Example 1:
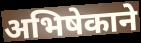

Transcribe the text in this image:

अभिषेकाने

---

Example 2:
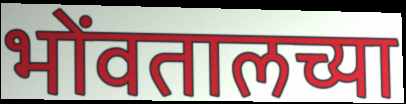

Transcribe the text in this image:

भोंवतालच्या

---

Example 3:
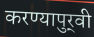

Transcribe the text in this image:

करण्यापुर्वी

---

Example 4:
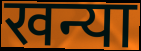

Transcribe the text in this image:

खन्या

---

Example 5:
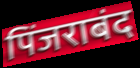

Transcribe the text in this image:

पिंजराबंद